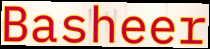
Basheer